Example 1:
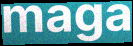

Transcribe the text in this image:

maga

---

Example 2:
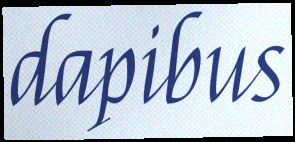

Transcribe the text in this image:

dapibus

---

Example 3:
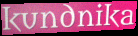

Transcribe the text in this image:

kundnika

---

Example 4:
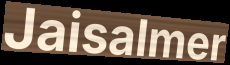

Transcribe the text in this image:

Jaisalmer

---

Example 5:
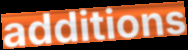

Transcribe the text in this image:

additions